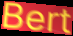
Bert